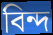
বিন্দ